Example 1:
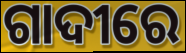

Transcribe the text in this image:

ଗାଦୀରେ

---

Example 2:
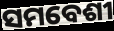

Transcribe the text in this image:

ସମବେଶୀ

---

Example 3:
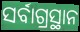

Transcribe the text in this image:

ସର୍ବାଗ୍ରସ୍ଥାନ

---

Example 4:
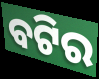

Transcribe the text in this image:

ବଟିର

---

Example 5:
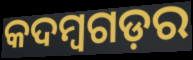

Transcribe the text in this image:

କଦମ୍ବଗଡ଼ର